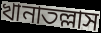
খানাতল্লাস